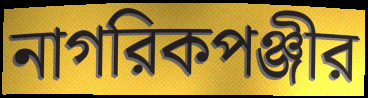
নাগরিকপঞ্জীর